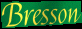
Bresson